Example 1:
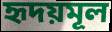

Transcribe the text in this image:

হৃদয়মূল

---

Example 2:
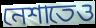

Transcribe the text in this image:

নেশাতেও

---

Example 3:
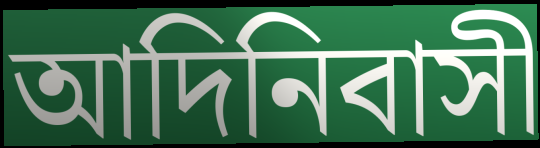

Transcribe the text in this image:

আদিনিবাসী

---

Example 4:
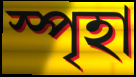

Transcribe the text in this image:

স্পৃহা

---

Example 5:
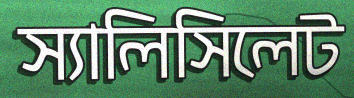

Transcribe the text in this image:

স্যালিসিলেট